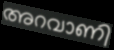
അറവാണി